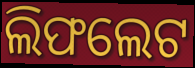
ଲିଫଲେଟ